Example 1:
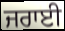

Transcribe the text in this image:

ਜਰਾਈ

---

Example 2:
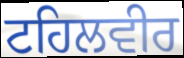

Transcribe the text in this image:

ਟਹਿਲਵੀਰ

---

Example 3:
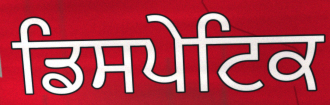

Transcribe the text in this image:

ਡਿਸਪੇਟਿਕ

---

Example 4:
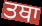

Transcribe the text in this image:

ਤਥਾ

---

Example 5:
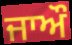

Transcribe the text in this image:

ਜਾਔ